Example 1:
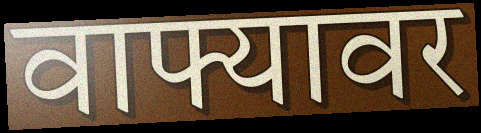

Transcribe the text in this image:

वाफ्यावर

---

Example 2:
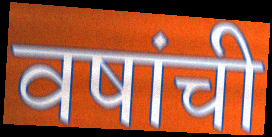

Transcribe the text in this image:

वषांची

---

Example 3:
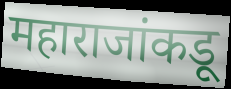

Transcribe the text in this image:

महाराजांकडू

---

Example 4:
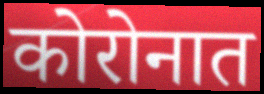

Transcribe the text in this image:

कोरोनात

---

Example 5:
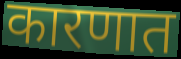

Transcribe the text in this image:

कारणात